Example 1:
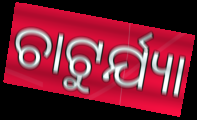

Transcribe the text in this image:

ଚାଟୁର୍ଯ୍ୟା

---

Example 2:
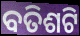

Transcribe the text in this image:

ବତିଶଟି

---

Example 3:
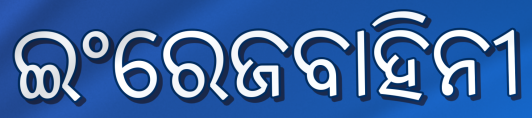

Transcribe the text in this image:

ଇଂରେଜବାହିନୀ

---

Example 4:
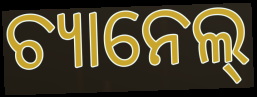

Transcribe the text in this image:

ଚ୍ୟାନେଲ୍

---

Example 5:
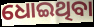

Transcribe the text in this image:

ଧୋଇଥିବା